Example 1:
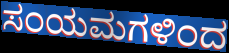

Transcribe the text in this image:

ಸಂಯಮಗಳಿಂದ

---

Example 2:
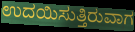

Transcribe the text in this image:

ಉದಯಿಸುತ್ತಿರುವಾಗ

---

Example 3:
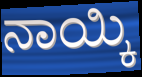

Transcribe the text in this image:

ನಾಯ್ಕಿ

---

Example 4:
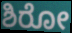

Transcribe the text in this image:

ಶಿರೋ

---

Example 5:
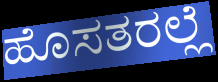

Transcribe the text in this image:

ಹೊಸತರಲ್ಲೆ